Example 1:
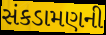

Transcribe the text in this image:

સંકડામણની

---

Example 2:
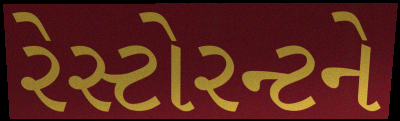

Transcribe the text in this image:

રેસ્ટોરન્ટને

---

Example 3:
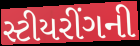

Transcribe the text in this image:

સ્ટીયરીંગની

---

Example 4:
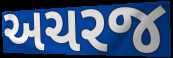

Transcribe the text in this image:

અચરજ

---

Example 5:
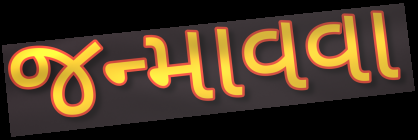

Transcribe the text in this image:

જન્માવવા